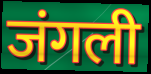
जंगली